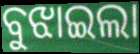
ବୁଝାଇଲା